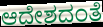
ಆದೇಶದಂತೆ